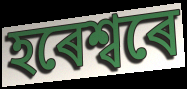
হৰেশ্বৰে